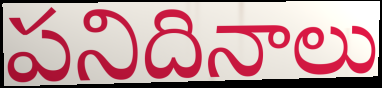
పనిదినాలు